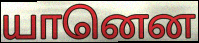
யானென